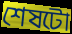
শেষটো